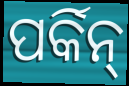
ପର୍କିନ୍